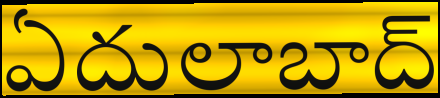
ఏదులాబాద్